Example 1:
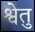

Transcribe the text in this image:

श्वेतु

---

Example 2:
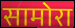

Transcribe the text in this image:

सामोरा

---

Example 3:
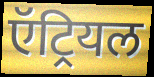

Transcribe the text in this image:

ऍट्रियल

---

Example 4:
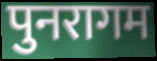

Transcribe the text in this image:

पुनरागम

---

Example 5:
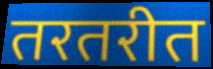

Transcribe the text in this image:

तरतरीत